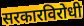
सरकारविरोधी